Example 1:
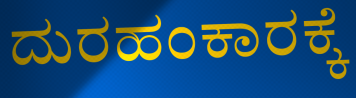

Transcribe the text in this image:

ದುರಹಂಕಾರಕ್ಕೆ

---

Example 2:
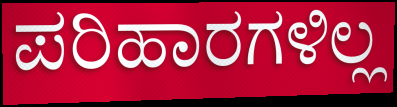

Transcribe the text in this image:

ಪರಿಹಾರಗಳಿಲ್ಲ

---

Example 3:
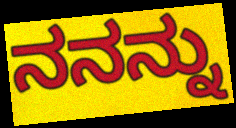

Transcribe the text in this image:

ನನನ್ನು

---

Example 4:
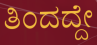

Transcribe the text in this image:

ತಿಂದದ್ದೇ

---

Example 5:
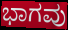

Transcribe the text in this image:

ಭಾಗವು